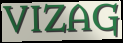
VIZAG